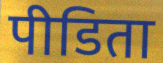
पीडिता